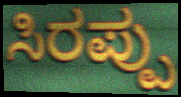
ಸಿರಪ್ಪು